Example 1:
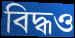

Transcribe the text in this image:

বিদ্ধও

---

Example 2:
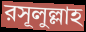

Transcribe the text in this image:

রসূলুল্লাহ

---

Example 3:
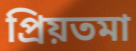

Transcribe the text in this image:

প্রিয়তমা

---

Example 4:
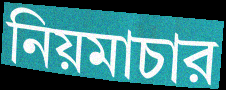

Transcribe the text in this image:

নিয়মাচার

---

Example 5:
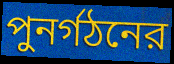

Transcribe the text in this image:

পুনর্গঠনের